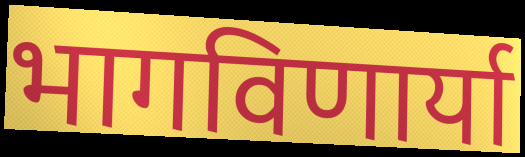
भागविणार्या